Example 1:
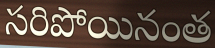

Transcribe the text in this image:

సరిపోయినంత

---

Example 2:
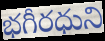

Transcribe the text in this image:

భగీరధుని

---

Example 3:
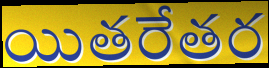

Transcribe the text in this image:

యితరేతర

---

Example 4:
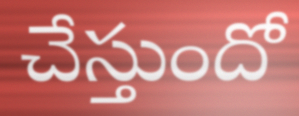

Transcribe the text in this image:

చేస్తుందో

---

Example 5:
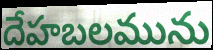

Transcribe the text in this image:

దేహబలమును